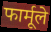
फार्मूले